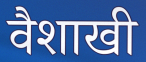
वैशाखी